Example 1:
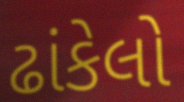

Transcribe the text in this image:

ઢાંકેલો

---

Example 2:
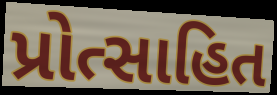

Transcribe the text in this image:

પ્રોત્સાહિત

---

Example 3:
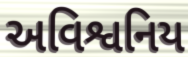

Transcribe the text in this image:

અવિશ્વનિય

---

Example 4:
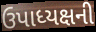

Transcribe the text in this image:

ઉપાધ્યક્ષની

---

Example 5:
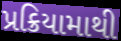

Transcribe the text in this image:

પ્રક્રિયામાથી